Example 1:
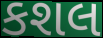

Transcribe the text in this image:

કશલ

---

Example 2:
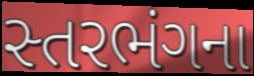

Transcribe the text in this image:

સ્તરભંગના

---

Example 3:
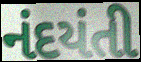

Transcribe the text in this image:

નંદયંતી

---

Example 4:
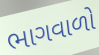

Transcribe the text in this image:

ભાગવાળો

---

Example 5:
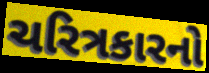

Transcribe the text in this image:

ચરિત્રકારનો